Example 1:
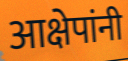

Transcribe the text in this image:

आक्षेपांनी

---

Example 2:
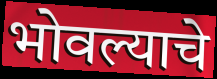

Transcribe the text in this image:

भोवल्याचे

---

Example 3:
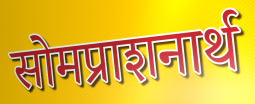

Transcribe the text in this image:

सोमप्राशनार्थ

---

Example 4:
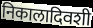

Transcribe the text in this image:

निकालादिवशी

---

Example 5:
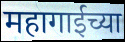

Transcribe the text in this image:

महागाईच्या